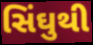
સિંઘુથી